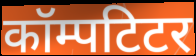
कॉम्पटिटर